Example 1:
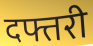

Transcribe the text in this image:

दफ्तरी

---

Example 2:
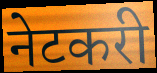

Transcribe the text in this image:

नेटकरी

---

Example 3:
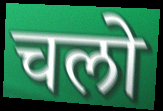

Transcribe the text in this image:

चलो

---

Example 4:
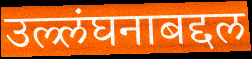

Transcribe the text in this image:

उल्लंघनाबद्दल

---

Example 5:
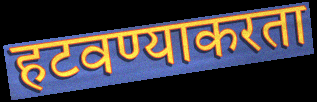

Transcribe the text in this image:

हटवण्याकरता